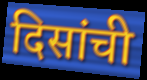
दिसांची